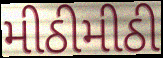
મીઠીમીઠી